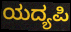
ಯದ್ಯಪಿ